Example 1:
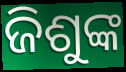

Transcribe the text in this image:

ଜିଶୁଙ୍କ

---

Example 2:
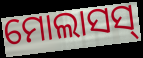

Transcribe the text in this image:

ମୋଲାସସ୍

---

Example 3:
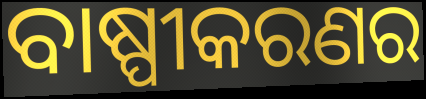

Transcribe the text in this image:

ବାଷ୍ପୀକରଣର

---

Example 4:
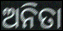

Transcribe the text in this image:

ଅନିତା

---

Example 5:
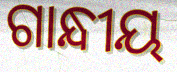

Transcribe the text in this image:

ଗାନ୍ଧୀୟ